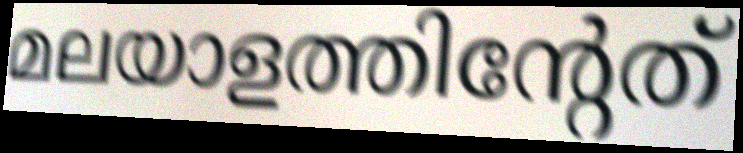
മലയാളത്തിന്റേത്